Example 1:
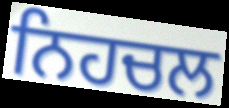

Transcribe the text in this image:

ਨਿਹਚਲ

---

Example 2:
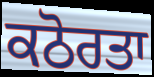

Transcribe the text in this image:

ਕਠੋਰਤਾ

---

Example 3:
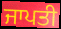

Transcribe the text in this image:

ਜਾਪਤੀ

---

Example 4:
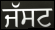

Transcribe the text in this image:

ਜੱਸਟ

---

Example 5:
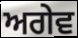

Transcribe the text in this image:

ਅਗੇਵ